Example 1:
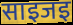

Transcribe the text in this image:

साइजइ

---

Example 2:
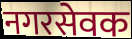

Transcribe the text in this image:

नगरसेवक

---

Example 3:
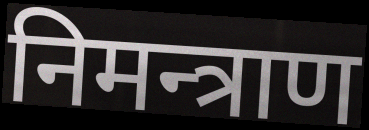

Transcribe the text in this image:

निमन्त्राण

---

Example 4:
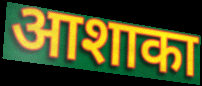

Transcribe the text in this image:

आशाका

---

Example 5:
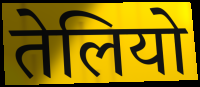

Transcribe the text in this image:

तेलियो